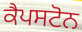
ਕੈਪਸਟੋਨ